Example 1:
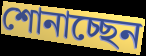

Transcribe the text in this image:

শোনাচ্ছেন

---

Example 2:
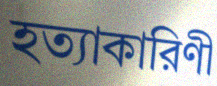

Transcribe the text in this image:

হত্যাকারিণী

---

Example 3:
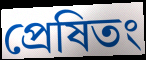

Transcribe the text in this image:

প্রেষিতং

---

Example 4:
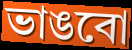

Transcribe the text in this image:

ভাঙবো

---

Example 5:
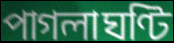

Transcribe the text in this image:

পাগলাঘণ্টি